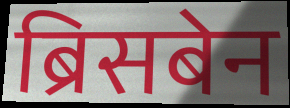
ब्रिसबेन